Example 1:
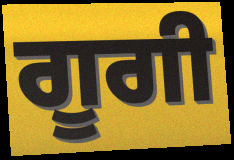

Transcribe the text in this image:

ਗੂਗੀ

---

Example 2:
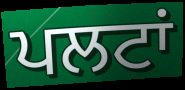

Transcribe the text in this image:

ਪਲਟਾਂ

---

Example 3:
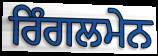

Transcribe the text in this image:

ਰਿੰਗਲਮੇਨ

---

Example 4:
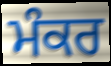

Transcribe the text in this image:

ਮੰਕਰ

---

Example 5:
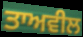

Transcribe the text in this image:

ਤਾਅਵੀਲ